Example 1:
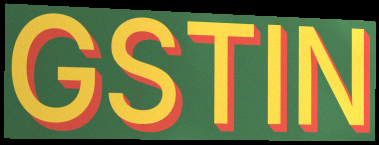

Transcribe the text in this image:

GSTIN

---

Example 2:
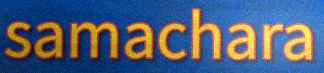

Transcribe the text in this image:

samachara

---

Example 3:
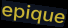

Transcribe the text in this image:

epique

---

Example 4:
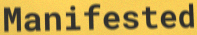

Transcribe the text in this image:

Manifested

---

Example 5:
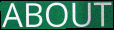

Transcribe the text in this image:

ABOUT